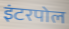
इंटरपोल